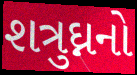
શત્રુઘ્નનો